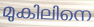
മുകിലിനെ